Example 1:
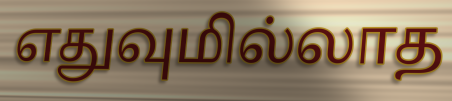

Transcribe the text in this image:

எதுவுமில்லாத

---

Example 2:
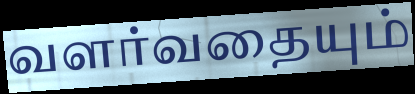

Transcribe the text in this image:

வளர்வதையும்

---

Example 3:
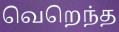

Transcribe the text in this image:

வெறெந்த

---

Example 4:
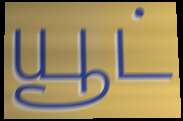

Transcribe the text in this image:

யூட்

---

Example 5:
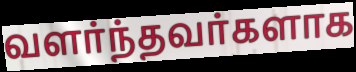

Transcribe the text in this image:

வளர்ந்தவர்களாக